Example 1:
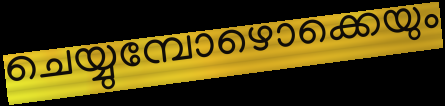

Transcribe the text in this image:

ചെയ്യുമ്പോഴൊക്കെയും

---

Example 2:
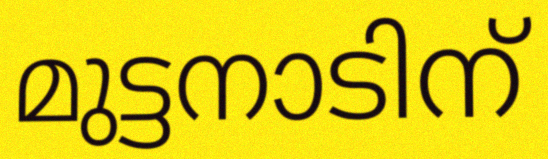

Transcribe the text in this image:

മുട്ടനാടിന്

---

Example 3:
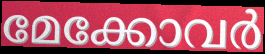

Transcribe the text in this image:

മേക്കോവർ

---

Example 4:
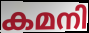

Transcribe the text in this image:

കമനി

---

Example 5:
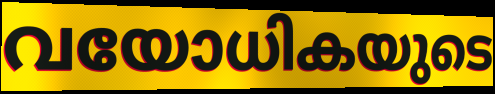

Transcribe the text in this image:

വയോധികയുടെ